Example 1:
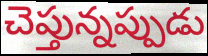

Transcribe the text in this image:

చెప్తున్నప్పుడు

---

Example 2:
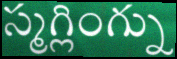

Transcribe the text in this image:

స్మగ్లింగ్ను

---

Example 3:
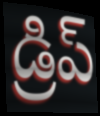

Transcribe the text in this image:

డ్రిప్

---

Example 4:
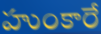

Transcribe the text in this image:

హుంకారే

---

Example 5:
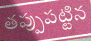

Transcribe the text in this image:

తప్పుపట్టిన